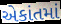
એકાંતમાં